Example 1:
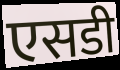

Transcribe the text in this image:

एसडी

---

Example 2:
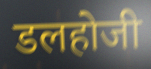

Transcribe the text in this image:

डलहोजी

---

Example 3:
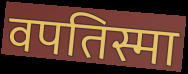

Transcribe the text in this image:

वपतिस्मा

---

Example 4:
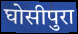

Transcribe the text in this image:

घोसीपुरा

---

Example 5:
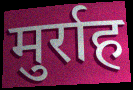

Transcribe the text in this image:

मुर्राह